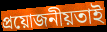
প্ৰয়োজনীয়তাই